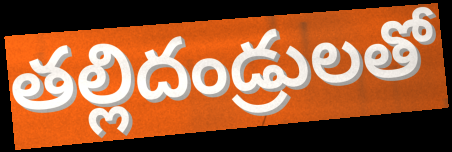
తల్లిదండ్రులతో